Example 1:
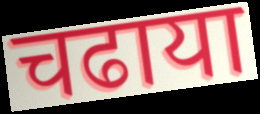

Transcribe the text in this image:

चढाया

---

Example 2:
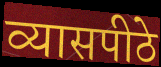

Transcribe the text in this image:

व्यासपीठे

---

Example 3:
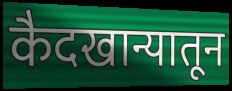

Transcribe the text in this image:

कैदखान्यातून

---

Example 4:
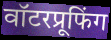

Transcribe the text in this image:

वॉटरप्रूफिंग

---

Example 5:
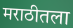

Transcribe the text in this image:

मराठीतला